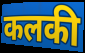
कलकी